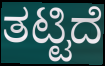
ತಟ್ಟಿದೆ